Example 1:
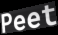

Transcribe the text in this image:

Peet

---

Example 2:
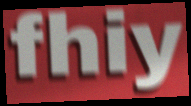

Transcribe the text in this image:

fhiy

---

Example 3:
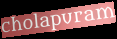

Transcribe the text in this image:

cholapuram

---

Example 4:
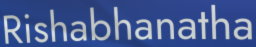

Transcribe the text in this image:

Rishabhanatha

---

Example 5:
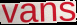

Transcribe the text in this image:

vans